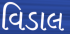
વિડાલ